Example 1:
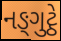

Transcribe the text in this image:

નઙ્ગુટ્ઠે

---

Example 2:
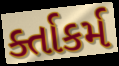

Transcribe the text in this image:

ર્ક્તાકર્મ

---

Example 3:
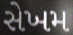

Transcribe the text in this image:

સેખમ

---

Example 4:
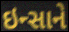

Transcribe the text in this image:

ઇન્સાને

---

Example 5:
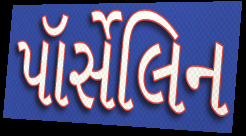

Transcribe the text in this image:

પૉર્સેલિન